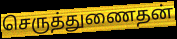
செருத்துணைதன்